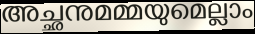
അച്ഛനുമമ്മയുമെല്ലാം